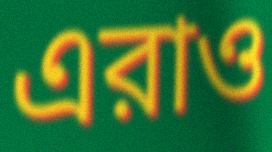
এরাও